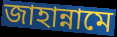
জাহান্নামে